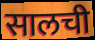
सालची